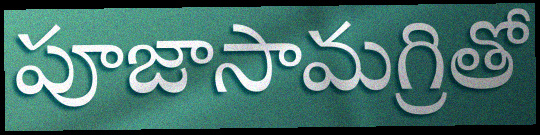
పూజాసామగ్రితో